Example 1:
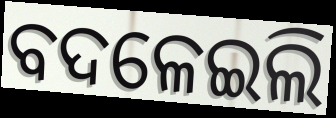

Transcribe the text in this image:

ବଦଳେଇଲି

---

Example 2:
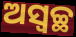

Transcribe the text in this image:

ଅସ୍ଵଚ୍ଛ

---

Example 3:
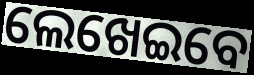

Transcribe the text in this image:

ଲେଖେଇବେ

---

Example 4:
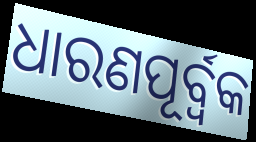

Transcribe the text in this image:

ଧାରଣପୂର୍ବ୍ବକ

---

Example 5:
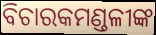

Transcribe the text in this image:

ବିଚାରକମଣ୍ଡଳୀଙ୍କ